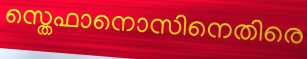
സ്തെഫാനൊസിനെതിരെ